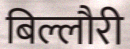
बिल्लौरी